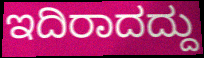
ಇದಿರಾದದ್ದು